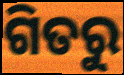
ଗିତରୁ